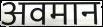
अवमान